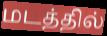
மடத்தில்